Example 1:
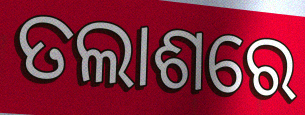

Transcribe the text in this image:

ତଲାଶରେ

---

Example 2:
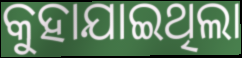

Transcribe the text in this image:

କୁହାଯାଇଥିଲା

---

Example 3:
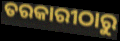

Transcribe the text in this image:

ତରକାରୀଠାରୁ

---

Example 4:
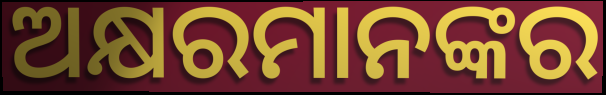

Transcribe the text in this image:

ଅକ୍ଷରମାନଙ୍କର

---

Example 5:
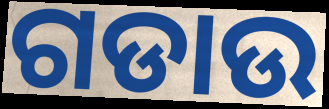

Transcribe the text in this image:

ଗଡାଉ